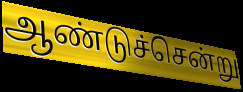
ஆண்டுச்சென்று